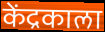
केंद्रकाला